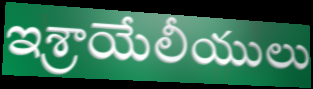
ఇశ్రాయేలీయులు